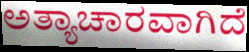
ಅತ್ಯಾಚಾರವಾಗಿದೆ